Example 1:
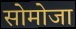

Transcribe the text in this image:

सोमोजा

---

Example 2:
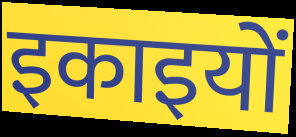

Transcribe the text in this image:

इकाइयों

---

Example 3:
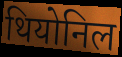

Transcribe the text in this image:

थियोनिल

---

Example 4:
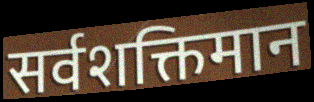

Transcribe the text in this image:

सर्वशक्तिमान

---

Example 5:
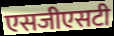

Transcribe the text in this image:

एसजीएसटी